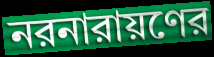
নরনারায়ণের